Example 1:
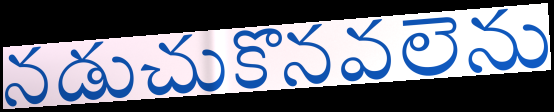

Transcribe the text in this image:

నడుచుకొనవలెను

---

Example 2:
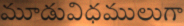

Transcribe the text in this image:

మూడువిధములుగా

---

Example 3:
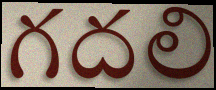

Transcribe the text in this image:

గదలి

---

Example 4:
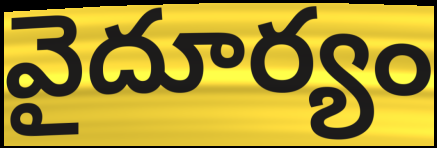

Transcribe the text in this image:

వైదూర్యం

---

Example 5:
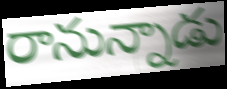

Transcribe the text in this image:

రానున్నాడు